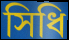
সিধি